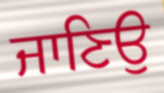
ਜਾਣਿਉ